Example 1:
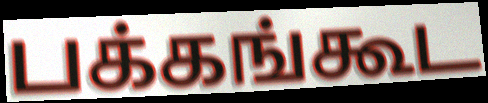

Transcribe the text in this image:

பக்கங்கூட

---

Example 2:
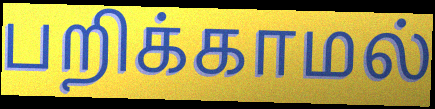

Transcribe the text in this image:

பறிக்காமல்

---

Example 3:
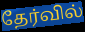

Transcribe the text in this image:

தேர்வில்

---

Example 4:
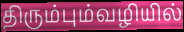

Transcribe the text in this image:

திரும்பும்வழியில்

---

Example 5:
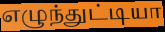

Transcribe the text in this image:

எழுந்துட்டியா